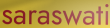
saraswati